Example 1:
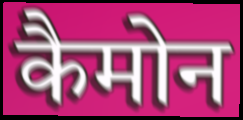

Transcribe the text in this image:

कैमोन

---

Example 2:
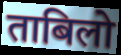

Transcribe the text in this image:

ताबिलो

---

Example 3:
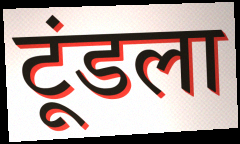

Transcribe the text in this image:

टूंडला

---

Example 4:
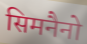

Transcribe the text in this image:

सिमनैनो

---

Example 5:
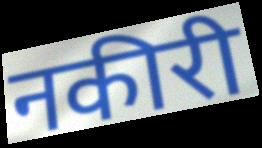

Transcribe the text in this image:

नकीरी